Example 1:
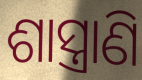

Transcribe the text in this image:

ଶାସ୍ତ୍ରାଣି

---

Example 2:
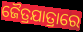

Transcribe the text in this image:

ଜୈତ୍ରଯାତ୍ରାରେ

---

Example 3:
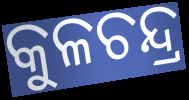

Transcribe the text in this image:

କୁଳଚନ୍ଦ୍ର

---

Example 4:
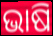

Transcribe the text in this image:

ଭାଷି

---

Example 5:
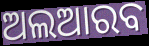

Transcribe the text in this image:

ଅଲଆରବ